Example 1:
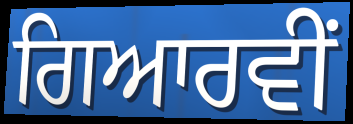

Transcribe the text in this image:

ਗਿਆਰਵੀਂ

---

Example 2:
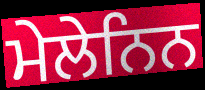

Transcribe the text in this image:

ਮੇਲੇਨਿਨ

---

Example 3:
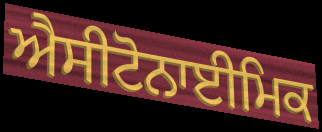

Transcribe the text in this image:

ਐਸੀਟੋਨਾਈਮਿਕ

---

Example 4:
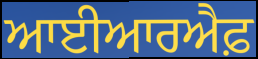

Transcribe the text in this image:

ਆਈਆਰਐਫ਼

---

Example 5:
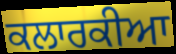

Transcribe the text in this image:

ਕਲਾਰਕੀਆ